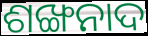
ଶଙ୍ଖନାଦ